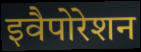
इवैपोरेशन